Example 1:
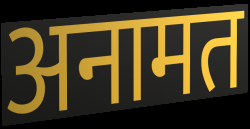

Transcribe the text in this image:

अनामत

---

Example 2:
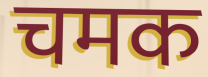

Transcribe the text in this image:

चमक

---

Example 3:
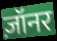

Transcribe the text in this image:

ज़ॉनर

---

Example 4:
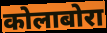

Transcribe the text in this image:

कोलाबोरा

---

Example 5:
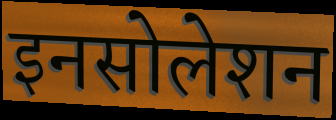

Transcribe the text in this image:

इनसोलेशन